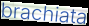
brachiata